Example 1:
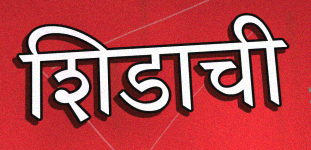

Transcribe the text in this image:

शिडाची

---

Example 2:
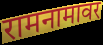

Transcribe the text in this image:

रामनामावर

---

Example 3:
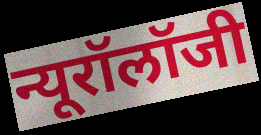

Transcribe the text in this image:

न्यूरॉलॉजी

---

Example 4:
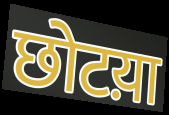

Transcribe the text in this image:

छोटय़ा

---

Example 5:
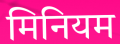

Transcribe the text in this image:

मिनियम